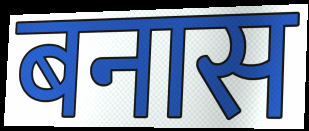
बनास